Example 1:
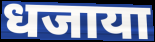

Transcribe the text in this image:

धजाया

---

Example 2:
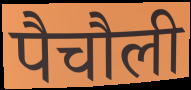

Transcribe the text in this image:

पैचौली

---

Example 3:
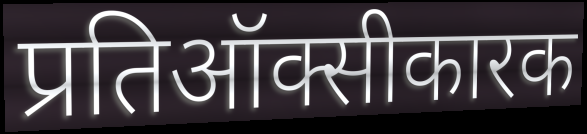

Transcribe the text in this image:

प्रतिऑक्सीकारक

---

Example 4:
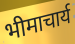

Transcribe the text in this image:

भीमाचार्य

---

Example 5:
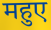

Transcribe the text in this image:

महुए